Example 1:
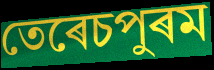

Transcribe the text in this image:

তেৰেচপুৰম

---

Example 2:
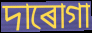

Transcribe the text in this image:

দাৰোগা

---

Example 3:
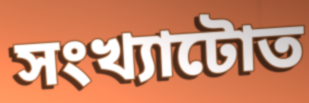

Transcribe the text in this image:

সংখ্যাটোত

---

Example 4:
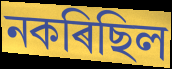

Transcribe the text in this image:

নকৰিছিল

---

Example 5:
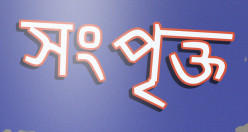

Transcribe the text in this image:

সংপৃক্ত